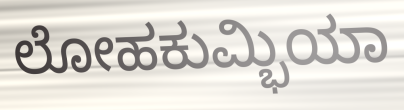
ಲೋಹಕುಮ್ಭಿಯಾ